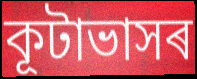
কূটাভাসৰ